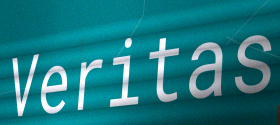
Veritas